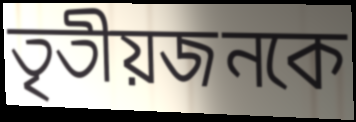
তৃতীয়জনকে